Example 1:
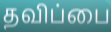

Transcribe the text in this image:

தவிப்பை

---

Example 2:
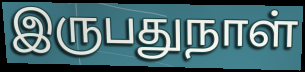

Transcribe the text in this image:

இருபதுநாள்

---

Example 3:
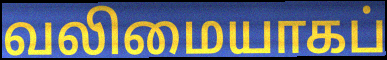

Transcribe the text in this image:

வலிமையாகப்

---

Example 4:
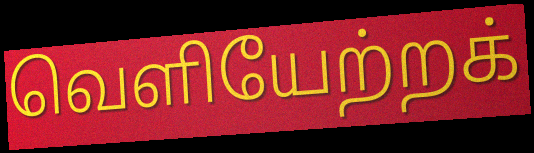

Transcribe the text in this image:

வெளியேற்றக்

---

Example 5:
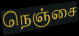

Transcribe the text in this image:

நெஞ்சை